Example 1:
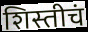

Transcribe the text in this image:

शिस्तीचं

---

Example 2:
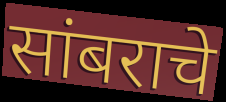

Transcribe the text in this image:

सांबराचे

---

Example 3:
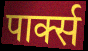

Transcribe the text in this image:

पार्क्‍स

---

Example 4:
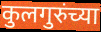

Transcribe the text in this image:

कुलगुरुंच्या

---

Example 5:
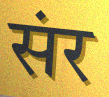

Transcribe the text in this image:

संर